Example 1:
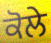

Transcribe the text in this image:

ਕੋਲੇ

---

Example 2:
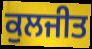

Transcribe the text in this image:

ਕੁਲਜੀਤ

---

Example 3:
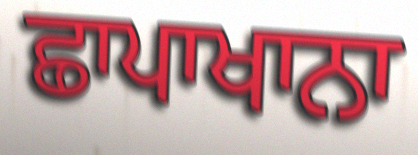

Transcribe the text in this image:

ਛਾਪਾਖਾਨਾ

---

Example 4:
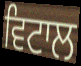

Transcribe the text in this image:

ਵਿਟਾਲ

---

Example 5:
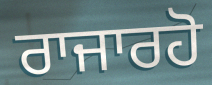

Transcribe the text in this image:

ਰਾਜਾਰਹੋ